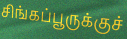
சிங்கப்பூருக்குச்